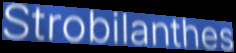
Strobilanthes